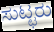
ಸುಟ್ಟರು